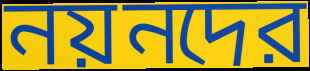
নয়নদের